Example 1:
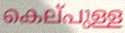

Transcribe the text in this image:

കെല്‌പുള്ള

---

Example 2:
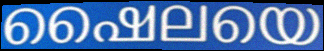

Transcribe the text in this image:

ഷൈലയെ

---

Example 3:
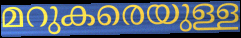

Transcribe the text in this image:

മറുകരെയുള്ള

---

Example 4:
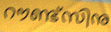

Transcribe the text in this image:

റൗണ്ട്സിനു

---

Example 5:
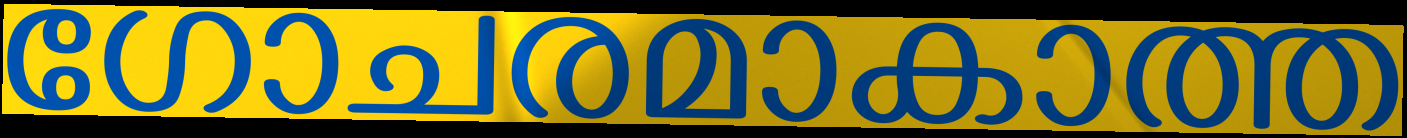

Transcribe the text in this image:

ഗോചരമാകാത്ത